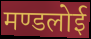
मण्डलोई